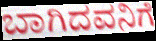
ಬಾಗಿದವನಿಗೆ